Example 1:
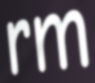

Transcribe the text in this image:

rm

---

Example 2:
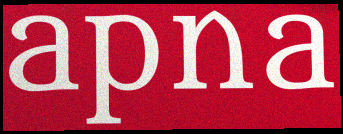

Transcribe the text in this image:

apna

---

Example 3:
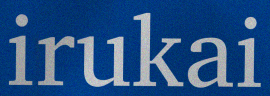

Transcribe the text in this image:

irukai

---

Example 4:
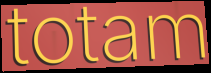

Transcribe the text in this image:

totam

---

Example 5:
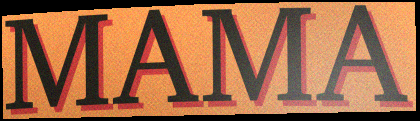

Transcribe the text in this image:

MAMA